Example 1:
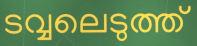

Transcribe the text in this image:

ടവ്വലെടുത്ത്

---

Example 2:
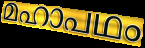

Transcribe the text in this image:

മഹാപഥം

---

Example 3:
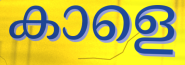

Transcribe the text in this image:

കാളെ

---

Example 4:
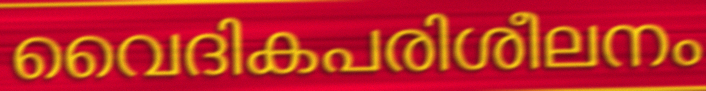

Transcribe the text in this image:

വൈദികപരിശീലനം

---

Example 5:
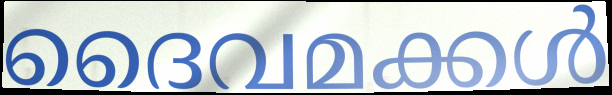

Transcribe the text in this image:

ദൈവമക്കൾ